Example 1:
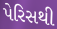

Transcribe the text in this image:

પેરિસથી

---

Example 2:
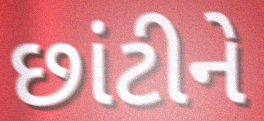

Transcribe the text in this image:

છાંટીને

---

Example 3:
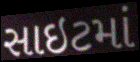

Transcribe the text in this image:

સાઇટમાં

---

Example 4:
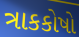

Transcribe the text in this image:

ત્રાકકોષો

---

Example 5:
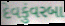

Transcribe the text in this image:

દેવકુંવરબા